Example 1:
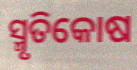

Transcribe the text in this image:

ସ୍ମୃତିକୋଷ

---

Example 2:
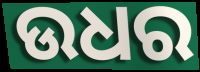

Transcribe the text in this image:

ଉଧର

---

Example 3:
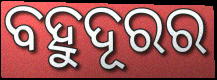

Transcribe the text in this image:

ବହୁଦୂରର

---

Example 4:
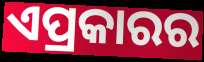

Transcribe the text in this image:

ଏପ୍ରକାରର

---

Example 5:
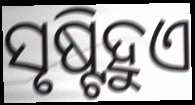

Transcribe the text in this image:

ସୃଷ୍ଟିହୁଏ